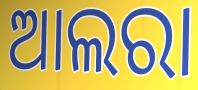
ଆଲରା